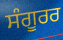
ਸੰਗੂਰਰ